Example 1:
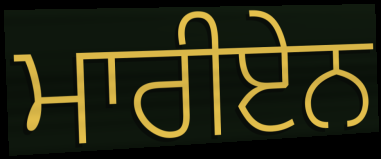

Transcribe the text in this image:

ਮਾਰੀਏਨ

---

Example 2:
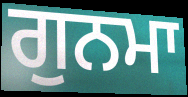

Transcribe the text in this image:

ਗੁਨਮਾ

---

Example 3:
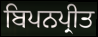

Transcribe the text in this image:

ਬਿਪਨਪ੍ਰੀਤ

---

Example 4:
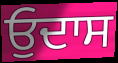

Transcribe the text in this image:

ਓੁਦਾਸ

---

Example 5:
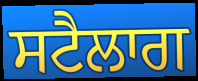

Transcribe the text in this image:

ਸਟੈਲਾਗ